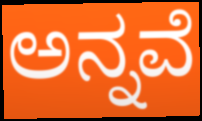
ಅನ್ನವೆ